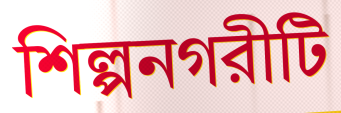
শিল্পনগরীটি